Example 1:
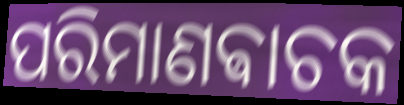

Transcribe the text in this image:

ପରିମାଣଵାଚକ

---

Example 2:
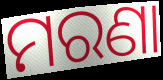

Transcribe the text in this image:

ମରଣା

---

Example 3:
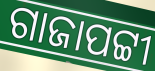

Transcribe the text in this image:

ଗାଜାପଟ୍ଟୀ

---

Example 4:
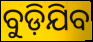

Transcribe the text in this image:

ବୁଡ଼ିଯିବ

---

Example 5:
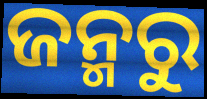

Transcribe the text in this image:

ଜନ୍ମରୁ